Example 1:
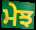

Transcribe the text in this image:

ਮੇਝ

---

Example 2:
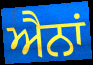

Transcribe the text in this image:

ਐਨਾਂ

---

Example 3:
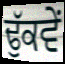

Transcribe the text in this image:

ਢੁੱਕਵੇਂ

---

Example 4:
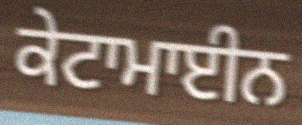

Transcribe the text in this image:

ਕੇਟਾਮਾਈਨ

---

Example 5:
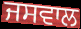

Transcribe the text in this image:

ਜਸਵਾਲ